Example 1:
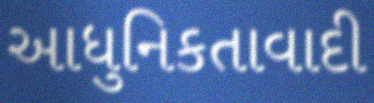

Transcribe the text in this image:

આધુનિકતાવાદી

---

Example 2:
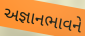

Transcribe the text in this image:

અજ્ઞાનભાવને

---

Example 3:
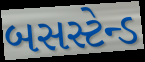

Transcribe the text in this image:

બસસ્ટેન્ડ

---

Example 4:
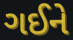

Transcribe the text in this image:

ગઈને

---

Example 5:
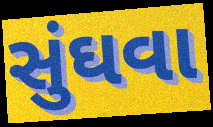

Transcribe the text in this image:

સુંઘવા